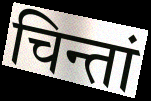
चिन्तां